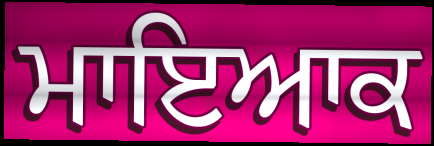
ਮਾਇਆਕ